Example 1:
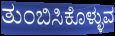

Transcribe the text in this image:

ತುಂಬಿಸಿಕೊಳ್ಳುವ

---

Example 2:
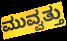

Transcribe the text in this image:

ಮುವ್ವತ್ತು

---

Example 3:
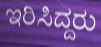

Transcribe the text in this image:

ಇರಿಸಿದ್ದರು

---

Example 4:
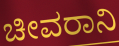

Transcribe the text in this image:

ಚೀವರಾನಿ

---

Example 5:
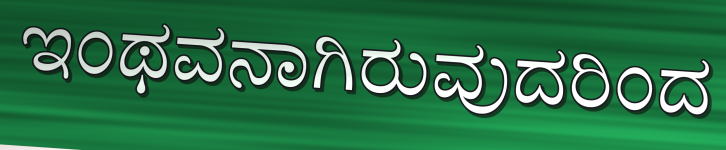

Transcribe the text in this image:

ಇಂಥವನಾಗಿರುವುದರಿಂದ